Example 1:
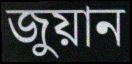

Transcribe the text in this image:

জুয়ান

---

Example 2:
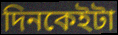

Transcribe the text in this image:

দিনকেইটা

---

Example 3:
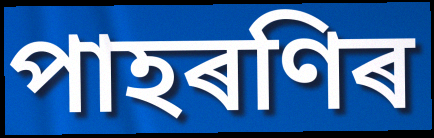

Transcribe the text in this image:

পাহৰণিৰ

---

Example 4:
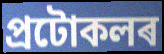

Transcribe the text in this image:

প্ৰটোকলৰ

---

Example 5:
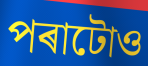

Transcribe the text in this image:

পৰাটোও